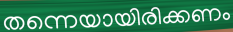
തന്നെയായിരിക്കണം